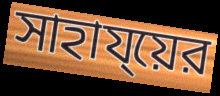
সাহায্য়ের